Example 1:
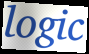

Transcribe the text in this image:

logic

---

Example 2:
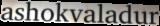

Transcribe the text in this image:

ashokvaladur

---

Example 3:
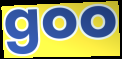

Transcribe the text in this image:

goo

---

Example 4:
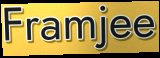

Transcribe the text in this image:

Framjee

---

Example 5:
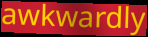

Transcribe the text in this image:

awkwardly